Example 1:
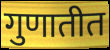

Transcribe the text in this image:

गुणातीत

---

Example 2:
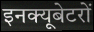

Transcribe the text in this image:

इनक्यूबेटरों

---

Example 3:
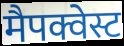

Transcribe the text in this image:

मैपक्वेस्ट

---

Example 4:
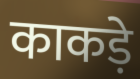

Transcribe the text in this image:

काकड़े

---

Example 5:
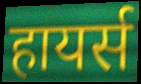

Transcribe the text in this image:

हायर्स